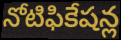
నోటిఫికేషన్ల